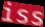
iss